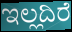
ಇಲ್ಲದಿರೆ